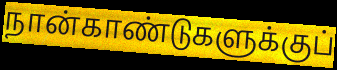
நான்காண்டுகளுக்குப்